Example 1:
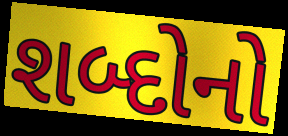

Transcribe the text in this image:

શબ્દોનો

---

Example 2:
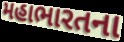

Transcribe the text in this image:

મહાભારતના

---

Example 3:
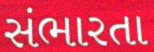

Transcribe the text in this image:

સંભારતા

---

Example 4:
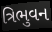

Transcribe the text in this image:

ત્રિભુવન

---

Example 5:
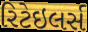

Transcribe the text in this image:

રિટેઇલર્સ